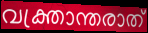
വക്ത്രാന്തരാത്